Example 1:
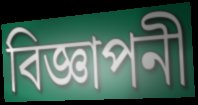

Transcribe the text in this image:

বিজ্ঞাপনী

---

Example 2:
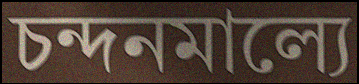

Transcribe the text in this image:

চন্দনমাল্যে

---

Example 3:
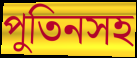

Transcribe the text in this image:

পুতিনসহ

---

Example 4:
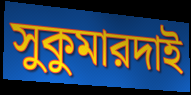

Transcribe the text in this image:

সুকুমারদাই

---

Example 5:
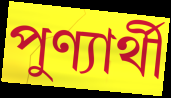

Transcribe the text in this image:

পুণ্যার্থী